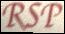
RSP